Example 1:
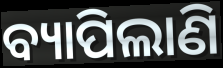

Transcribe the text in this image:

ବ୍ୟାପିଲାଣି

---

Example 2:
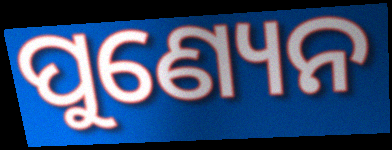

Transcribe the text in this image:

ପୁଣ୍ୟେନ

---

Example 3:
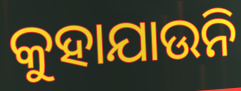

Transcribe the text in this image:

କୁହାଯାଉନି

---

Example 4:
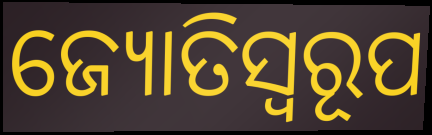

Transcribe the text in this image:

ଜ୍ୟୋତିସ୍ୱରୂପ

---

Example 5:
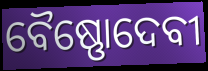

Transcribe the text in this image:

ବୈଷ୍ଣୋଦେବୀ